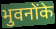
भुवनोंके